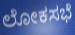
ಲೋಕಸಭೆ